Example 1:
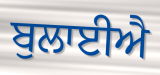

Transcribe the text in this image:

ਬੁਲਾਈਐ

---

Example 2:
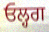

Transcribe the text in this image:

ਓਲ੍ਹਗ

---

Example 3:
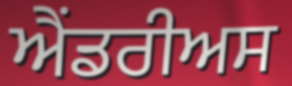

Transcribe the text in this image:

ਐਂਡਰੀਅਸ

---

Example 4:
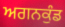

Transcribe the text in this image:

ਅਗਨਕੁੰਡ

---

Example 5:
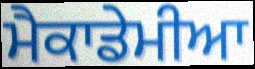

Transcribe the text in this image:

ਮੈਕਾਡੇਮੀਆ